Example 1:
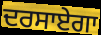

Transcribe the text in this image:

ਦਰਸਾਏਗਾ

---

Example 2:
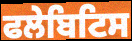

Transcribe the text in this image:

ਫਲੇਬਿਟਿਸ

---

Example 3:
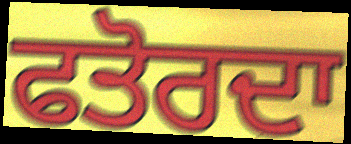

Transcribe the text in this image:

ਫਤੋਰਦਾ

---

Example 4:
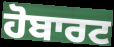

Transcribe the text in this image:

ਹੋਬਾਰਟ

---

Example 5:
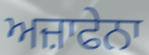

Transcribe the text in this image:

ਅਜ਼ਾਫੇਨਾ